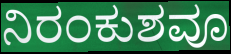
ನಿರಂಕುಶವೂ